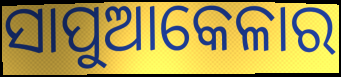
ସାପୁଆକେଳାର